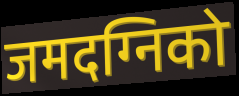
जमदग्निको